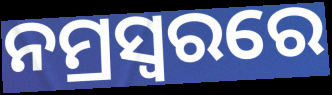
ନମ୍ରସ୍ୱରରେ